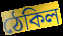
ঠেকিল